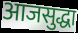
आजसुद्धा